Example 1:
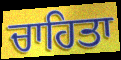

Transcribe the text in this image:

ਚਾਹਿਤਾ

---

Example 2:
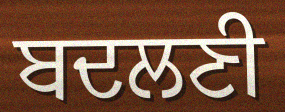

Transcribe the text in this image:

ਬਦਲਣੀ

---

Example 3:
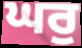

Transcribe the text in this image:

ਘਰੁ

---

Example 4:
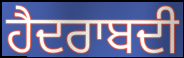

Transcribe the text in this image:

ਹੈਦਰਾਬਦੀ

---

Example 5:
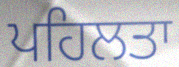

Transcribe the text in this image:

ਪਹਿਲਤਾ